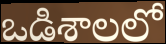
ఒడిశాలలో